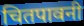
चितपावनी